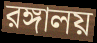
রঙ্গালয়